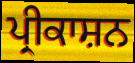
ਪ੍ਰੀਕਾਸ਼ਨ